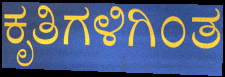
ಕೃತಿಗಳಿಗಿಂತ